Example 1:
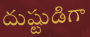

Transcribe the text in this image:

దుష్టుడిగా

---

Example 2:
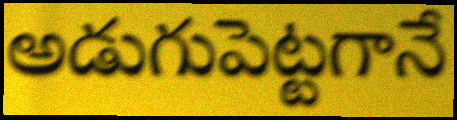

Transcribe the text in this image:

అడుగుపెట్టగానే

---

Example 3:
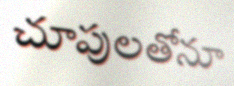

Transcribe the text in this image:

చూపులతోనూ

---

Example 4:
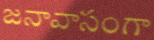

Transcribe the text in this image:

జనావాసంగా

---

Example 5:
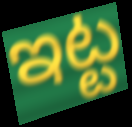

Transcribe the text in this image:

ఇట్ట